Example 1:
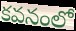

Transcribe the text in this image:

కవనంలో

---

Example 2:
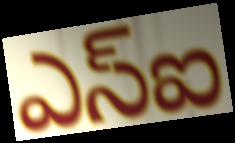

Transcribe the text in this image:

ఎస్ఐ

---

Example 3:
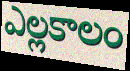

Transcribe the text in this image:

ఎల్లకాలం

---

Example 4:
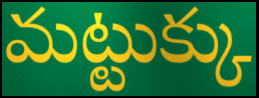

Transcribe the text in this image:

మట్టుక్కు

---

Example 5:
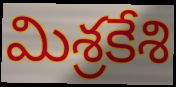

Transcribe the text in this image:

మిశ్రకేశి